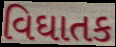
વિઘાતક